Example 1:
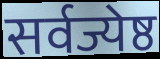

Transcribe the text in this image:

सर्वज्येष्ठ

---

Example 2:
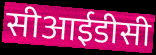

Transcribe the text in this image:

सीआईडीसी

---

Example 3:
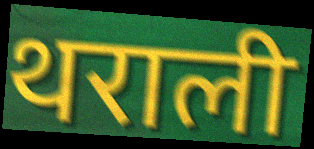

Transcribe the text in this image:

थराली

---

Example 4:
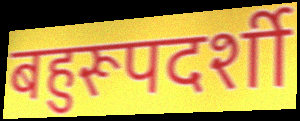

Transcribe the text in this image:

बहुरूपदर्शी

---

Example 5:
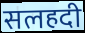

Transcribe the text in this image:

सलहदी